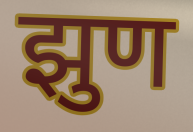
झुण